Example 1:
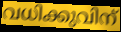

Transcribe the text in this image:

വധിക്കുവിന്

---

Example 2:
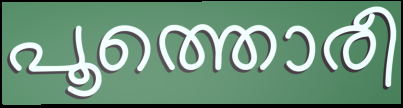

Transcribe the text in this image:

പൂത്തൊരീ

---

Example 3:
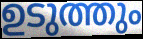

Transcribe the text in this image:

ഉടുത്തും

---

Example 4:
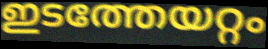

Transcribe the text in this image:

ഇടത്തേയറ്റം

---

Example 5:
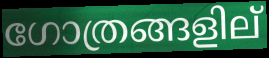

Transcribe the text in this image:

ഗോത്രങ്ങളില്